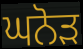
ਘਨੋੜ